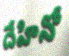
దేహినో